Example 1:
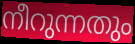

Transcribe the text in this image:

നീറുന്നതും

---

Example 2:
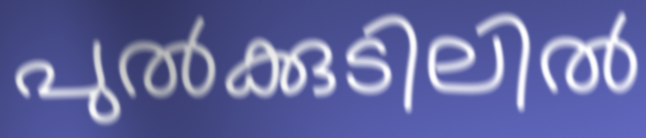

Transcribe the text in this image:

പുൽക്കുടിലിൽ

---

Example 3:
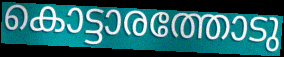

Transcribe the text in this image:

കൊട്ടാരത്തോടു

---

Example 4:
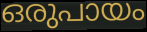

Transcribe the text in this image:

ഒരുപായം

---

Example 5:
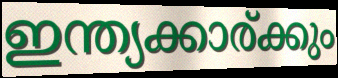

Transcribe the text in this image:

ഇന്ത്യക്കാര്ക്കും